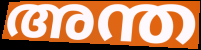
അന്ത